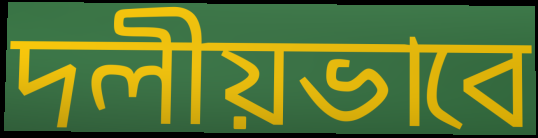
দলীয়ভাবে